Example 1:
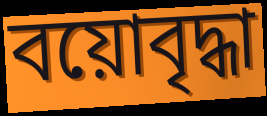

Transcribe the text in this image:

বয়োবৃদ্ধা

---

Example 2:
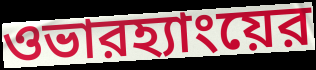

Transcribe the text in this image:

ওভারহ্যাংয়ের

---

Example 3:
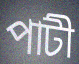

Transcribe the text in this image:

পাটী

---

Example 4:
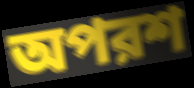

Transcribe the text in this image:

অপরশ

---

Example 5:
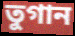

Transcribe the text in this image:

তুগান